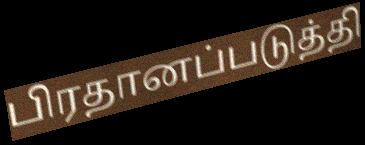
பிரதானப்படுத்தி